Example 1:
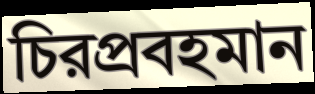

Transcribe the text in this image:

চিরপ্রবহমান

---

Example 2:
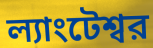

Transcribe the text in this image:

ল্যাংটেশ্বর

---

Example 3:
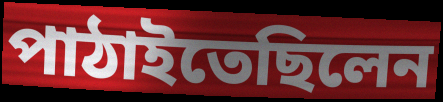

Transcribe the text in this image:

পাঠাইতেছিলেন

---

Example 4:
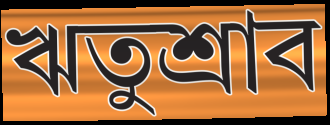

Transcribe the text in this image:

ঋতুশ্রাব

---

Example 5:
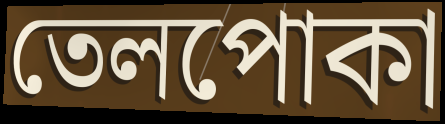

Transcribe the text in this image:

তেলপোকা